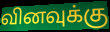
வினவுக்கு